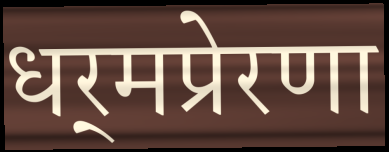
धर्मप्रेरणा